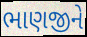
ભાણજીને